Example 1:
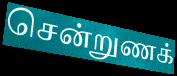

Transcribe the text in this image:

சென்றுணக்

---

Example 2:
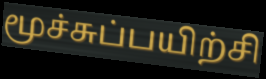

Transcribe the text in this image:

மூச்சுப்பயிற்சி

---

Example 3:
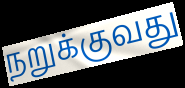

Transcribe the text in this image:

நறுக்குவது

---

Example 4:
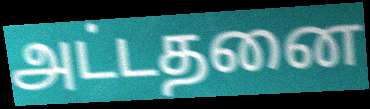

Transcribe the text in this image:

அட்டதனை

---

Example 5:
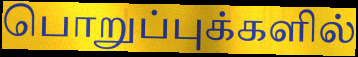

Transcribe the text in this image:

பொறுப்புக்களில்